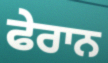
ਫੇਰਾਨ